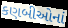
કણબીઓનાં